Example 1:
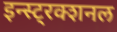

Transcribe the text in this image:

इन्स्ट्रक्शनल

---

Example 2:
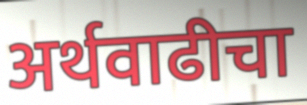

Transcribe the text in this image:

अर्थवाढीचा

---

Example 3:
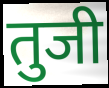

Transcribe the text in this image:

तुजी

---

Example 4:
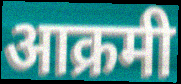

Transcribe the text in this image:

आक्रमी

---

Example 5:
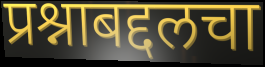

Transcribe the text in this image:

प्रश्नाबद्दलचा